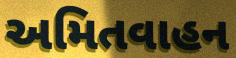
અમિતવાહન